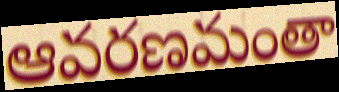
ఆవరణమంతా